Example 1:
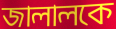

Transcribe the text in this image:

জালালকে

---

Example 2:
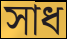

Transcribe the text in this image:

সাধ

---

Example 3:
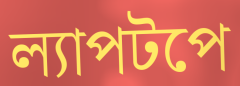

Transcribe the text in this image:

ল্যাপটপে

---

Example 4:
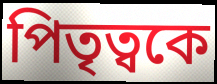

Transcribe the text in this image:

পিতৃত্বকে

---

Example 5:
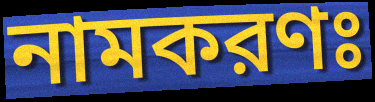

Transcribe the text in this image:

নামকরণঃ